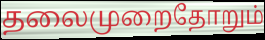
தலைமுறைதோறும்